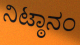
ನಿಟ್ಠಾನಂ